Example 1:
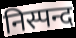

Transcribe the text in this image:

निस्पन्द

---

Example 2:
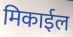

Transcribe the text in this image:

मिकाईल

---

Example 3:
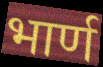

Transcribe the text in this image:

भार्ण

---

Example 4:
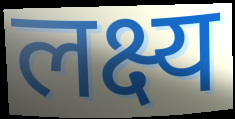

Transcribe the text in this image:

लक्ष्य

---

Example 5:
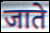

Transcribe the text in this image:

जाते